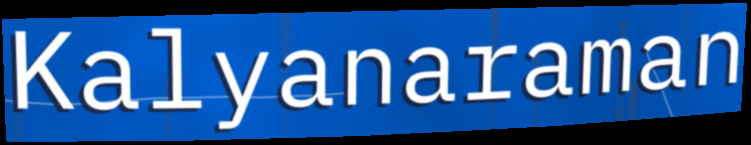
Kalyanaraman